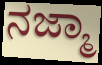
ನಜ್ಮಾ